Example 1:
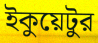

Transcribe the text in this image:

ইকুয়েটুর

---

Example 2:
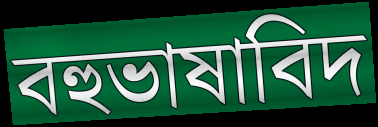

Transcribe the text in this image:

বহুভাষাবিদ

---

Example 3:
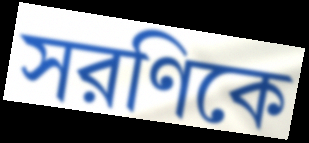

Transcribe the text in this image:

সরণিকে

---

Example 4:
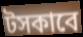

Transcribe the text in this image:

টসকাবে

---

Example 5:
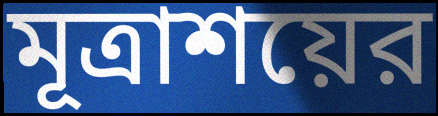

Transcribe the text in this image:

মূত্রাশয়ের